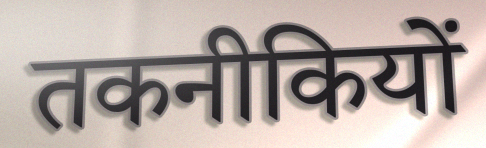
तकनीकियों